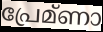
പ്രേമ്ണാ